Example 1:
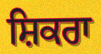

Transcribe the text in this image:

ਸ਼ਿਕਰਾ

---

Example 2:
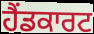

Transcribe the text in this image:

ਹੈਂਡਕਾਰਟ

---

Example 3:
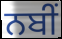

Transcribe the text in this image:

ਨਬੀਂ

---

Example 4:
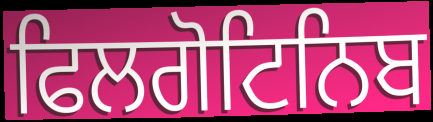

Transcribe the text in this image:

ਫਿਲਗੋਟਿਨਿਬ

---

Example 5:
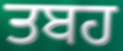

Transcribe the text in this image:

ਤਬਹ